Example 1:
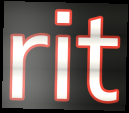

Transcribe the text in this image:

rit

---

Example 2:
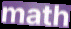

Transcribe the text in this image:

math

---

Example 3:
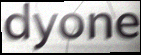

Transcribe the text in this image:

dyone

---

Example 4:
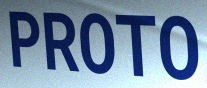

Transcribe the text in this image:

PROTO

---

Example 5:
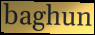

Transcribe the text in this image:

baghun